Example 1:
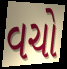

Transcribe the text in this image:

વચો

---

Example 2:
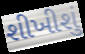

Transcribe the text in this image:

શીખીશું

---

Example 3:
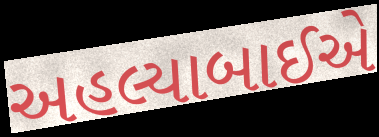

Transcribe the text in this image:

અહલ્યાબાઈએ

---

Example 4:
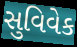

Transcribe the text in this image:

સુવિવેક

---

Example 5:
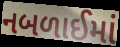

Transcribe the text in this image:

નબળાઈમાં